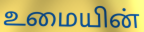
உமையின்